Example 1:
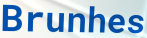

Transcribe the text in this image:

Brunhes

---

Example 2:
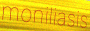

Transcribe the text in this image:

moniliasis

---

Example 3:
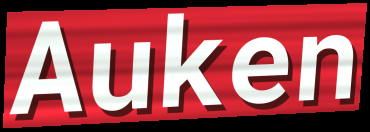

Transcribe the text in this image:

Auken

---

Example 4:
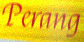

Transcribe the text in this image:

Perang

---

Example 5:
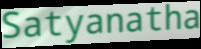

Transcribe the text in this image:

Satyanatha